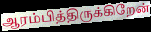
ஆரம்பித்திருக்கிறேன்